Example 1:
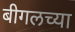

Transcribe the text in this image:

बीगलच्या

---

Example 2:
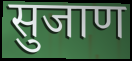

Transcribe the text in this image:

सुजाण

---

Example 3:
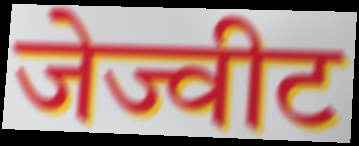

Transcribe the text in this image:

जेज्वीट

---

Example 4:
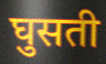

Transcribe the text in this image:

घुसती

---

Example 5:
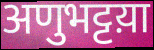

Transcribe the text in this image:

अणुभट्टय़ा